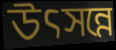
উৎসন্নে